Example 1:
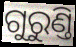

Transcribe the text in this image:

ଗୁରୁଣ୍ତି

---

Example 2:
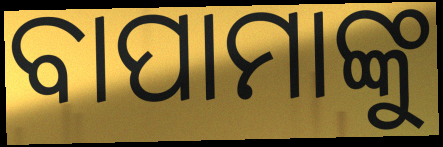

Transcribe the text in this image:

ବାପାମାଙ୍କୁ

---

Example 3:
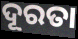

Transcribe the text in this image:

ଦୂରତା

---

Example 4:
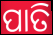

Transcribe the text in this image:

ପାତି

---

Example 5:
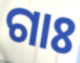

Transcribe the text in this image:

ଗାଃ